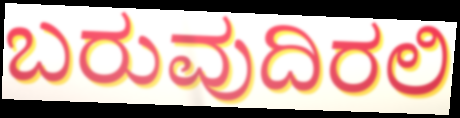
ಬರುವುದಿರಲಿ